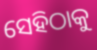
ସେହିଠାକୁ